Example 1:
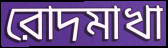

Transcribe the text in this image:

রোদমাখা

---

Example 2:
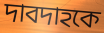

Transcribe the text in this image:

দাবদাহকে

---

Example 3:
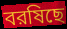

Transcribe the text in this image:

বরষিছে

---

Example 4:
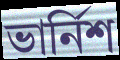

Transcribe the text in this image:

ভার্নিশ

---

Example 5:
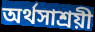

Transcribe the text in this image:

অর্থসাশ্রয়ী